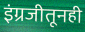
इंग्रजीतूनही